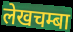
लेखचम्बा